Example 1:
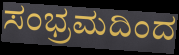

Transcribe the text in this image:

ಸಂಭ್ರಮದಿಂದ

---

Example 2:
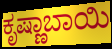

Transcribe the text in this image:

ಕೃಷ್ಣಾಬಾಯಿ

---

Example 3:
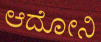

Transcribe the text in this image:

ಆದೋನಿ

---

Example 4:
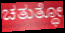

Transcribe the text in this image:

ಚತುತ್ಥೋ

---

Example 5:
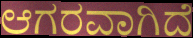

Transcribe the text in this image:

ಆಗರವಾಗಿದೆ